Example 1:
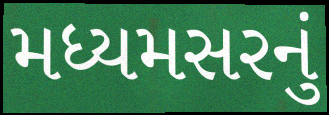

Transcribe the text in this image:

મધ્યમસરનું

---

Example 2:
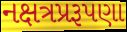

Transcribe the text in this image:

નક્ષત્રપ્રરૂપણા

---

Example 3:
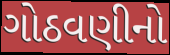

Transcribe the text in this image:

ગોઠવણીનો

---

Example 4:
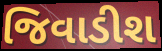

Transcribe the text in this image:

જિવાડીશ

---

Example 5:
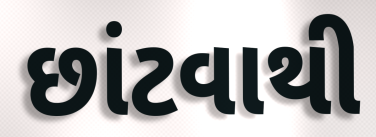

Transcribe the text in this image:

છાંટવાથી